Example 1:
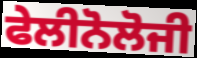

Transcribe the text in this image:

ਫੇਲੀਨੋਲੋਜੀ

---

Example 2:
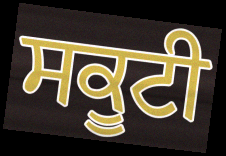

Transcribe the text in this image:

ਸਕੂਟੀ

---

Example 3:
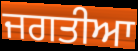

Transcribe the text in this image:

ਜਗਤੀਆ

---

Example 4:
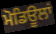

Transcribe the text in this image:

ਮੋਡਿਊਲਾਂ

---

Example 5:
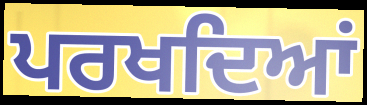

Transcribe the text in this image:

ਪਰਖਦਿਆਂ